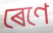
ৰেণে